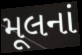
મૂલનાં